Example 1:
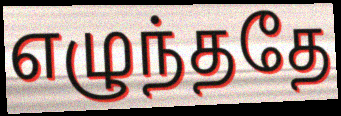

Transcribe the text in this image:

எழுந்ததே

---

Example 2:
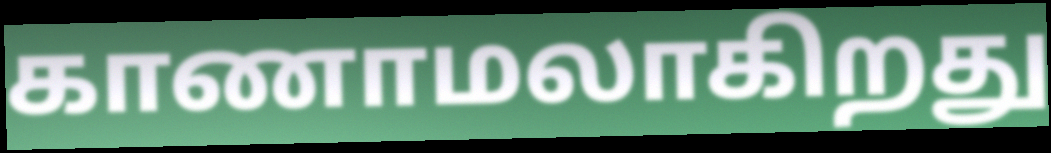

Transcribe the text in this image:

காணாமலாகிறது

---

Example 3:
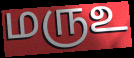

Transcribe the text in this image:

மருஉ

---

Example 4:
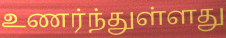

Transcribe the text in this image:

உணர்ந்துள்ளது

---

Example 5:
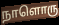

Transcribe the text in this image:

நாளொரு